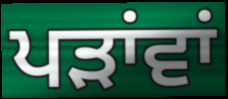
ਪੜਾਂਵਾਂ